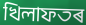
খিলাফতৰ